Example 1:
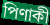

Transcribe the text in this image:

পিণাকী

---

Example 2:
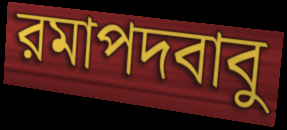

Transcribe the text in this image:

রমাপদবাবু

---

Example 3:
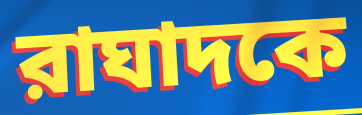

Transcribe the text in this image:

রাঘাদকে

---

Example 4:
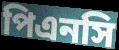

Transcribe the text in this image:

পিএনসি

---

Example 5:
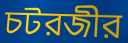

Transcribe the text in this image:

চটরজীর